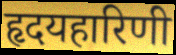
हृदयहारिणी